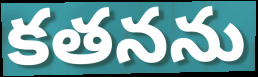
కతనను